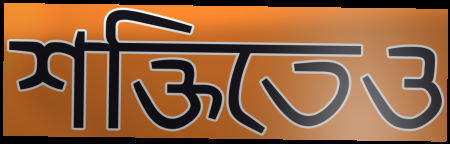
শক্তিতেও